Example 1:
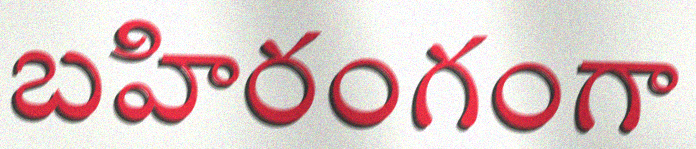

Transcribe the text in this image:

బహిరంగంగా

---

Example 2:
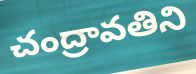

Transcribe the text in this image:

చంద్రావతిని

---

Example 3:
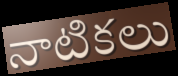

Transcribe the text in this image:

నాటికలు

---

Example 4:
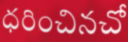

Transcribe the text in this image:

ధరించినచో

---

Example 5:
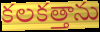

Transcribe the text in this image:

కలకత్తాను